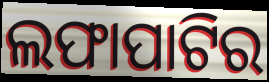
ଲଫାପାଟିର